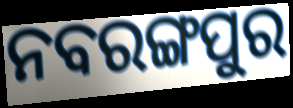
ନବରଙ୍ଗପୁର